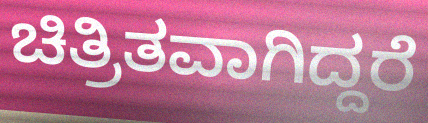
ಚಿತ್ರಿತವಾಗಿದ್ದರೆ